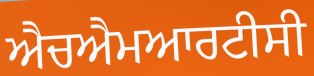
ਐਚਐਮਆਰਟੀਸੀ